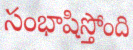
సంభాషిస్తోంది